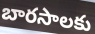
బారసాలకు